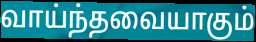
வாய்ந்தவையாகும்